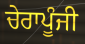
ਚੇਰਾਪੂੰਜੀ